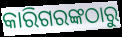
କାରିଗରଙ୍କଠାରୁ